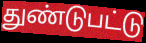
துண்டுபட்டு